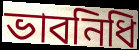
ভাবনিধি